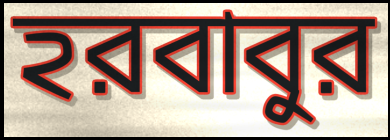
হরবাবুর